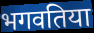
भगवतिया